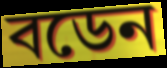
বডেন